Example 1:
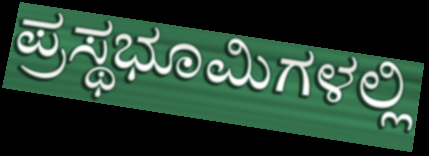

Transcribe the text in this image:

ಪ್ರಸ್ಥಭೂಮಿಗಳಲ್ಲಿ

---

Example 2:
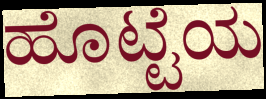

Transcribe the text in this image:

ಹೊಟ್ಟೆಯ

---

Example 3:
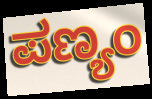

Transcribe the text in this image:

ಪಣ್ಯಂ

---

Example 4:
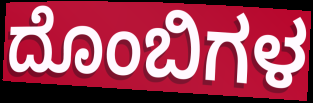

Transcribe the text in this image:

ದೊಂಬಿಗಳ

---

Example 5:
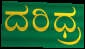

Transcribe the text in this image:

ದರಿಧ್ರ